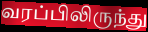
வரப்பிலிருந்து